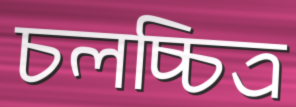
চলচ্চিত্র